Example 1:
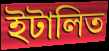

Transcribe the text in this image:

ইটালিত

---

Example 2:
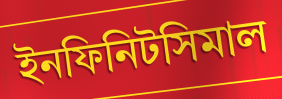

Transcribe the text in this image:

ইনফিনিটসিমাল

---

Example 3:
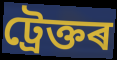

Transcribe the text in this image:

ট্ৰেক্তৰ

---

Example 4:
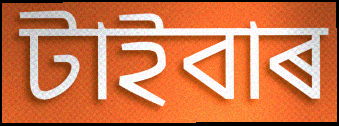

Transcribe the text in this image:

টাইবাৰ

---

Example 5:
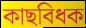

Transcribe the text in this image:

কাছবিধক